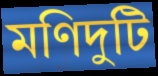
মণিদুটি